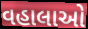
વહાલાઓ